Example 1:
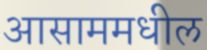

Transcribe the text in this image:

आसाममधील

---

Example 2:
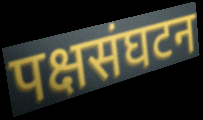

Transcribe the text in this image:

पक्षसंघटन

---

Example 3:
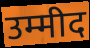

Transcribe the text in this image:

उम्मीद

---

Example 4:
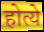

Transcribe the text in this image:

होत्ये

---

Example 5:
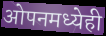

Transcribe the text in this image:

ओपनमध्येही